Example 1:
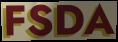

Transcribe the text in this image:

FSDA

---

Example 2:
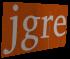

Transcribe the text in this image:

jgre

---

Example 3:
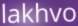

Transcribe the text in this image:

lakhvo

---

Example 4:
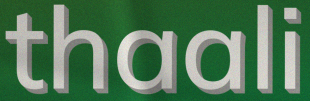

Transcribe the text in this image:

thaali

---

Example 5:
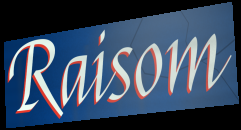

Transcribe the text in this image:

Raisom